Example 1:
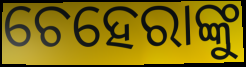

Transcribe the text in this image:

ଚେହେରାଙ୍କୁ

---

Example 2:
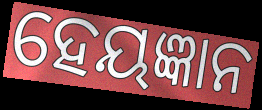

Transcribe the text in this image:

ହେୟଜ୍ଞାନ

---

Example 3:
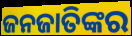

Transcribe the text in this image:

ଜନଜାତିଙ୍କର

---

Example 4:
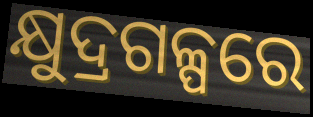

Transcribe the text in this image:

କ୍ଷୁଦ୍ରଗଳ୍ପରେ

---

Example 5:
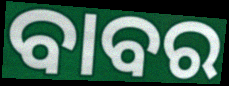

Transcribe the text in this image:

ବାବର